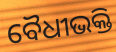
ବୈଧୀଭକ୍ତି